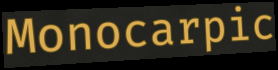
Monocarpic